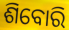
ଶିବୋରି